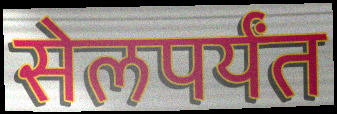
सेलपर्यंत